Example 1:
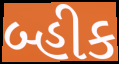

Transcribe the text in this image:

બ્હીક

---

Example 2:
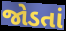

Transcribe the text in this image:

જોડતાં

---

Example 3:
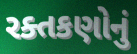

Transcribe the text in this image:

રક્તકણોનું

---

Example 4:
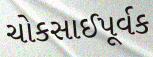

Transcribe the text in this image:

ચોકસાઈપૂર્વક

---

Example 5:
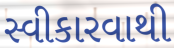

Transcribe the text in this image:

સ્વીકારવાથી